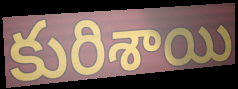
కురిశాయి